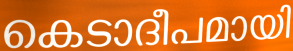
കെടാദീപമായി